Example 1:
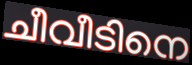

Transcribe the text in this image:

ചീവീടിനെ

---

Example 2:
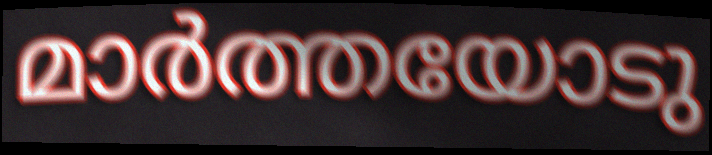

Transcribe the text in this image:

മാർത്തയോടു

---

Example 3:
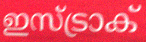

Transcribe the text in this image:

ഇസ്ട്രാക്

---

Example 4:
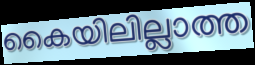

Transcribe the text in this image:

കൈയിലില്ലാത്ത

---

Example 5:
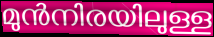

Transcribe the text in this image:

മുൻനിരയിലുള്ള